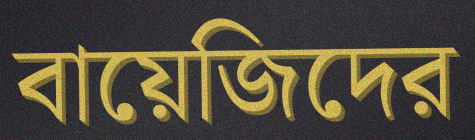
বায়েজিদের